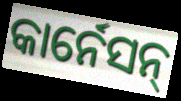
କାର୍ନେସନ୍